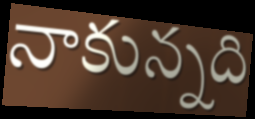
నాకున్నది